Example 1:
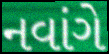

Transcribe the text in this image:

નવાંગે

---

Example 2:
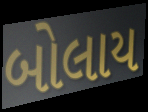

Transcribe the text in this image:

બોલાય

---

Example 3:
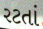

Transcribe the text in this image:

રટતાં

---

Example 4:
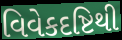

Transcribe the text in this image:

વિવેકદષ્ટિથી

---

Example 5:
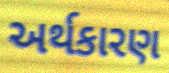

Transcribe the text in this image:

અર્થકારણ